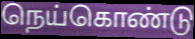
நெய்கொண்டு